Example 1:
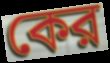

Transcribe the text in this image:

কের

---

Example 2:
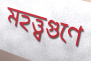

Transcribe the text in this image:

মহত্ত্বগুণে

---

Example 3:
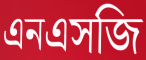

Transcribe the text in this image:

এনএসজি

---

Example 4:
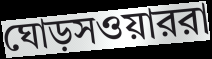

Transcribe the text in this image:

ঘোড়সওয়াররা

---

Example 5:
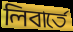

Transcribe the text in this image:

লিবার্তে